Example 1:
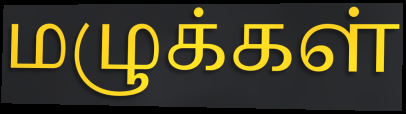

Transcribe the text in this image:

மழுக்கள்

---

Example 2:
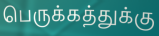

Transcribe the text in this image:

பெருக்கத்துக்கு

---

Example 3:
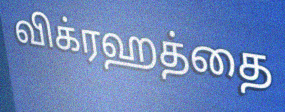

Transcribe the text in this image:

விக்ரஹத்தை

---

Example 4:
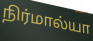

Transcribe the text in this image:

நிர்மால்யா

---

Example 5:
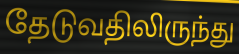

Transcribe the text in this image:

தேடுவதிலிருந்து